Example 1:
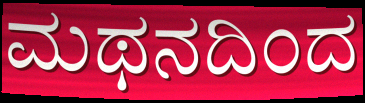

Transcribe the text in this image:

ಮಥನದಿಂದ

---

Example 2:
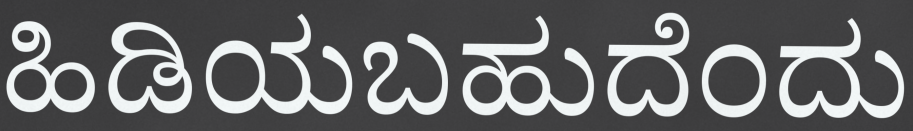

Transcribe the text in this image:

ಹಿಡಿಯಬಹುದೆಂದು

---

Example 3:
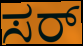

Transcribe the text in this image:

ಸರ್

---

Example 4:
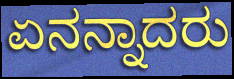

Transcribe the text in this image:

ಏನನ್ನಾದರು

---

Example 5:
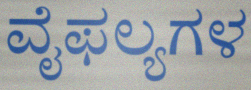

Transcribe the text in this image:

ವೈಫಲ್ಯಗಳ